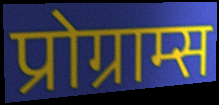
प्रोग्राम्‍स